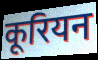
कूरियन